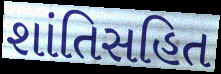
શાંતિસહિત